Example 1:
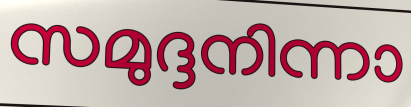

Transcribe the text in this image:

സമുദ്ദനിന്നാ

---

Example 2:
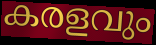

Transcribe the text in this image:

കരളവും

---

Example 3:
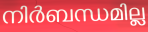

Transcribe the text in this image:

നിർബന്ധമില്ല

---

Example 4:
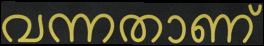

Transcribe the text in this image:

വന്നതാണ്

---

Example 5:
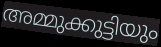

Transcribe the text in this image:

അമ്മുക്കുട്ടിയും